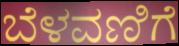
ಬೆಳವಣಿಗೆ